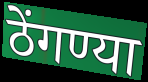
ठेंगण्या